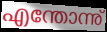
എന്തോന്നു്